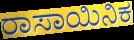
ರಾಸಾಯಿನಿಕ